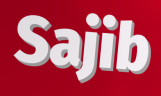
Sajib